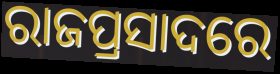
ରାଜପ୍ରସାଦରେ